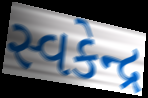
સ્વકેન્દ્ર